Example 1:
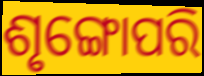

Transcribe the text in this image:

ଶୃଙ୍ଗୋପରି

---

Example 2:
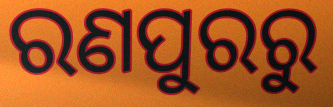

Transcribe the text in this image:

ରଣପୁରରୁ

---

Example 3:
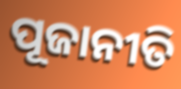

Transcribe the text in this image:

ପୂଜାନୀତି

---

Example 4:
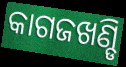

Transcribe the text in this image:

କାଗଜଖଣ୍ଡି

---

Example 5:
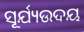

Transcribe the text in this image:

ସୂର୍ଯ୍ୟଉଦୟ